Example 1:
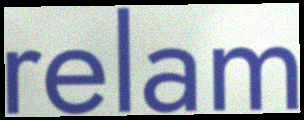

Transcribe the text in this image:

relam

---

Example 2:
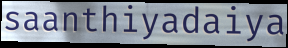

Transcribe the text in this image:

saanthiyadaiya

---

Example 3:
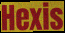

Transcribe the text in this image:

Hexis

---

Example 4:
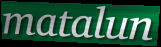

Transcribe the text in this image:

matalun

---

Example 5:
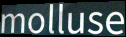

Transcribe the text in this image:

molluse